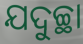
ଯଦୁଚ୍ଛା